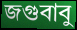
জগুবাবু